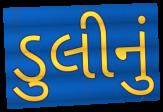
ડુલીનું